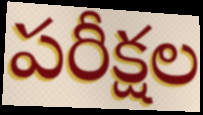
పరీక్షల